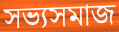
সভ্যসমাজ